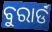
ବୁରାର୍ଡ